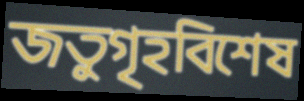
জতুগৃহবিশেষ